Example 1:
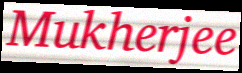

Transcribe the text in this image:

Mukherjee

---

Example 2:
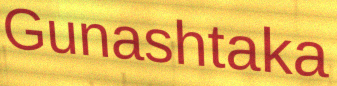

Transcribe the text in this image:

Gunashtaka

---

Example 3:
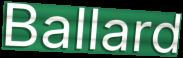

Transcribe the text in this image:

Ballard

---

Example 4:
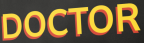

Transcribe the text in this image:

DOCTOR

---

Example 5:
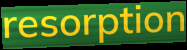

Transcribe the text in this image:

resorption